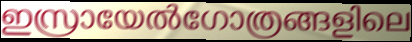
ഇസ്രായേൽഗോത്രങ്ങളിലെ